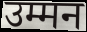
उम्मन